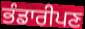
ਭੰਡਾਰੀਪਣ